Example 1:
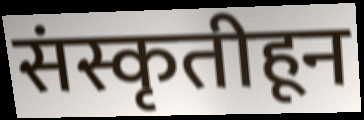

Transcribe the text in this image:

संस्कृतीहून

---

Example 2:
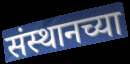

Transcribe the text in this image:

संस्थानच्या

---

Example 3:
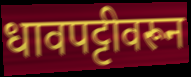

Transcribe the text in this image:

धावपट्टीवरून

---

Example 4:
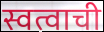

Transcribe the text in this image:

स्वत्वाची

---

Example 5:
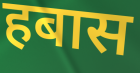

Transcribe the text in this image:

हबास